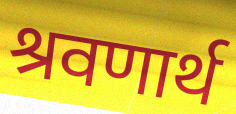
श्रवणार्थ